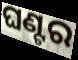
ଘଣ୍ଟର